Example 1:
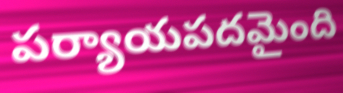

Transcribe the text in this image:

పర్యాయపదమైంది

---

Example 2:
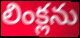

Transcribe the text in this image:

లింక్లను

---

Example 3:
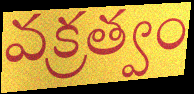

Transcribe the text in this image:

వక్రత్వం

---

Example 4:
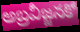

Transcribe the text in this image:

అబ్రవీజ్జనకో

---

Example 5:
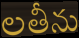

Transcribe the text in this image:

లతీను